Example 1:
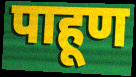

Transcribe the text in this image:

पाहूण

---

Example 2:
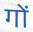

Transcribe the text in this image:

गों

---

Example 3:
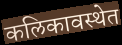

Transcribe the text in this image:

कलिकावस्थेत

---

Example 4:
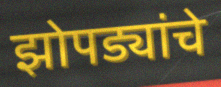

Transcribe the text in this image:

झोपड्यांचे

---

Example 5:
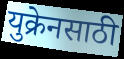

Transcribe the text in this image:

युक्रेनसाठी